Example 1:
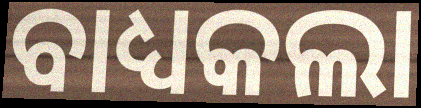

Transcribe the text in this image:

ବାଧ୍ୟକଲା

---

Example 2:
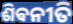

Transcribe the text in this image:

ଶିଵନୀତି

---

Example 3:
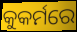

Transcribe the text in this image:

କୁକର୍ମରେ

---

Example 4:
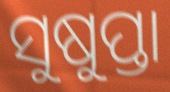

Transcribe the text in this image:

ସୁଷୁପ୍ତା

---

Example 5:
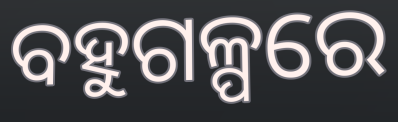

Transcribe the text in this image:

ବହୁଗଳ୍ପରେ